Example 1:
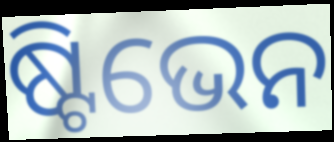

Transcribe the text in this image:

ଷ୍ଟିଭେନ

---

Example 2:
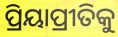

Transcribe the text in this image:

ପ୍ରିୟାପ୍ରୀତିକୁ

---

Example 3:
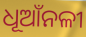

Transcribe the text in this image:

ଧୂଆଁନଳୀ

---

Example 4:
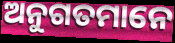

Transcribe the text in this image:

ଅନୁଗତମାନେ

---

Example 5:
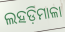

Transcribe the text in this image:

ଲହଡ଼ିମାଳା